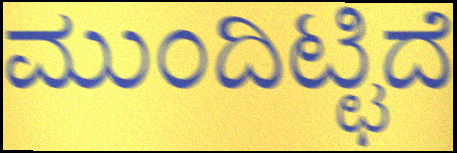
ಮುಂದಿಟ್ಟಿದೆ